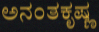
ಅನಂತಕೃಷ್ಣ